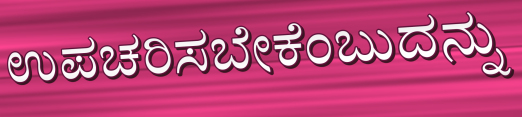
ಉಪಚರಿಸಬೇಕೆಂಬುದನ್ನು